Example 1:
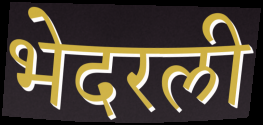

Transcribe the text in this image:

भेदरली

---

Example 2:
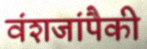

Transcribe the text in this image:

वंशजांपैकी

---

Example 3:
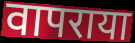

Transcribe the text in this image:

वापराया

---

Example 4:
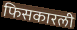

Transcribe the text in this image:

फिसकारली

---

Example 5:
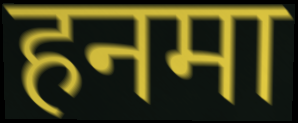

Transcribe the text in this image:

हनमा